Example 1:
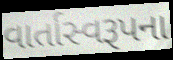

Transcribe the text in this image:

વાર્તાસ્વરૂપના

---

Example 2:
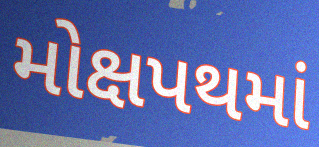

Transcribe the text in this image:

મોક્ષપથમાં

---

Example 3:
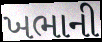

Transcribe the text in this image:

ખભાની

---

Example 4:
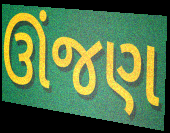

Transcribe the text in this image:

ઊંજણ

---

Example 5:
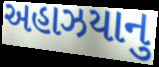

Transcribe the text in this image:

અહાઝયાનુ